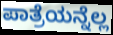
ಪಾತ್ರೆಯನ್ನೆಲ್ಲ